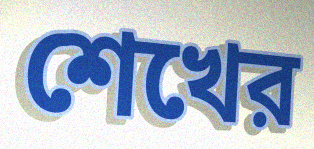
শেখের